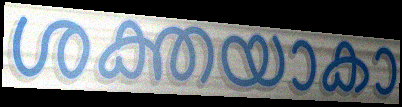
ശക്തയാകാ